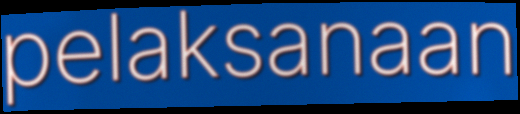
pelaksanaan